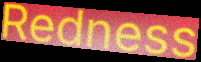
Redness